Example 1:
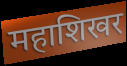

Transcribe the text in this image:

महाशिखर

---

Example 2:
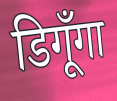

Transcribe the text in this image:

डिगूँगा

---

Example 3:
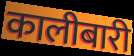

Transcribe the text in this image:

कालीबारी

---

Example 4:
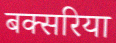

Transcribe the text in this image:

बक्सरिया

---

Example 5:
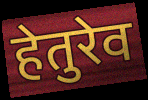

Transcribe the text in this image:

हेतुरेव